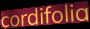
cordifolia